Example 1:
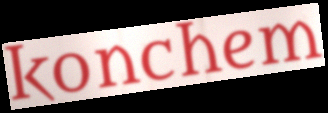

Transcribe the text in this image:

konchem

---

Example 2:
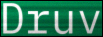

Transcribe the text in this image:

Druv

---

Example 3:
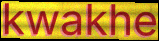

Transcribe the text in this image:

kwakhe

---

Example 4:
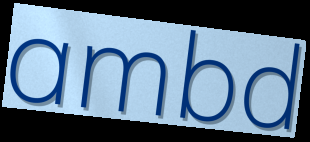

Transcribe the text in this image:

ambd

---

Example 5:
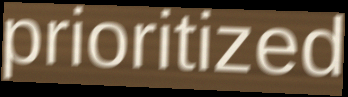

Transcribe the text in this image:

prioritized